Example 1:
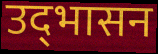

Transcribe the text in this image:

उद्भासन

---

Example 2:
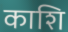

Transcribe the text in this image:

काशि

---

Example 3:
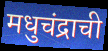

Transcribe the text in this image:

मधुचंद्राची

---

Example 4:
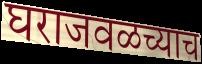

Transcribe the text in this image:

घराजवळच्याच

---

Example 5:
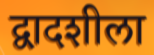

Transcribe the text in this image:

द्वादशीला